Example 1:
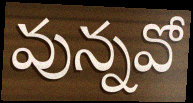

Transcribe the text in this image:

వున్నవో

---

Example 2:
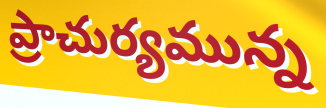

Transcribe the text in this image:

ప్రాచుర్యమున్న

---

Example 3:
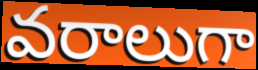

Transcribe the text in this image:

వరాలుగా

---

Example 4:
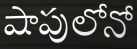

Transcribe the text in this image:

షాపులోనో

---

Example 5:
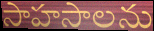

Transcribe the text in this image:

సాహసాలను